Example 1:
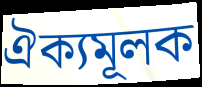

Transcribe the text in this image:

ঐক্যমূলক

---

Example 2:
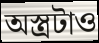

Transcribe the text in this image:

অস্ত্রটাও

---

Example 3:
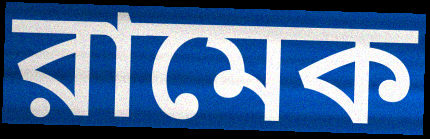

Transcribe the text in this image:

রামেক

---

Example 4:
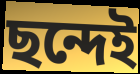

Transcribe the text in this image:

ছন্দেই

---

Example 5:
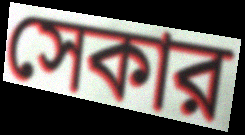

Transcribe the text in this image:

সেকার